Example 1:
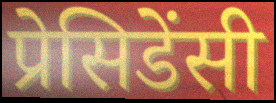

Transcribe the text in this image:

प्रेसिडेंसी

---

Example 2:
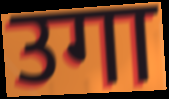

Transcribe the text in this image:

उगा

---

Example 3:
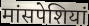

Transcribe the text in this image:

मांसपेशियां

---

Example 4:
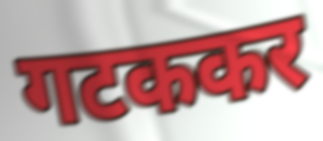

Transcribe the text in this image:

गटककर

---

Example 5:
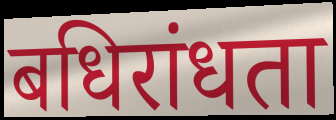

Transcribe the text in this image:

बधिरांधता